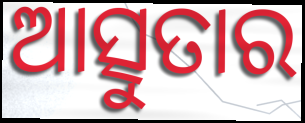
ଆତ୍ସୁତାର